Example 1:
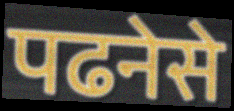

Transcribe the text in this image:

पढनेसे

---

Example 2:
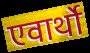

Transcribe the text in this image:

एवार्थो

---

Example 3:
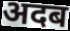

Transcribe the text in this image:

अदब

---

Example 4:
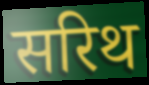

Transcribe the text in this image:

सरिथ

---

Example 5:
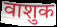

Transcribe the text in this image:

वाशुक